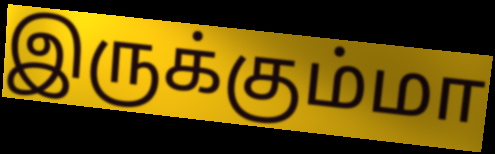
இருக்கும்மா